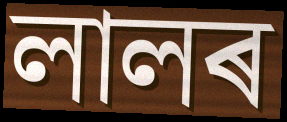
লালৰ